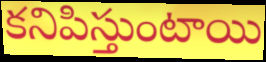
కనిపిస్తుంటాయి